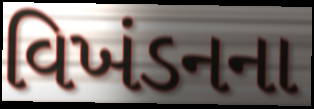
વિખંડનના